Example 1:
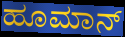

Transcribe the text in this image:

ಹೂಮಾನ್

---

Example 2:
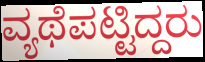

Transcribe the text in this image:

ವ್ಯಥೆಪಟ್ಟಿದ್ದರು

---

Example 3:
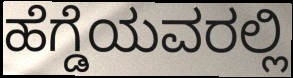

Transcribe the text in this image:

ಹೆಗ್ಡೆಯವರಲ್ಲಿ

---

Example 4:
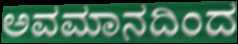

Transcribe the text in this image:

ಅವಮಾನದಿಂದ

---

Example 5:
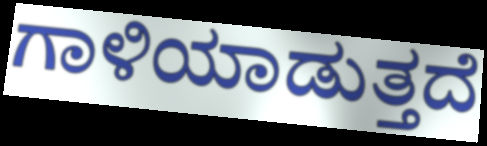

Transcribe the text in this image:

ಗಾಳಿಯಾಡುತ್ತದೆ